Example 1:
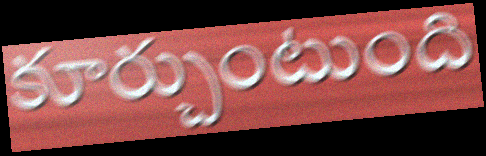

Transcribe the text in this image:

కూర్చుంటుంది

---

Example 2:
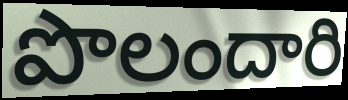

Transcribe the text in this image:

పొలందారి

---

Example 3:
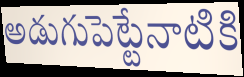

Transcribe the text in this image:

అడుగుపెట్టేనాటికి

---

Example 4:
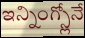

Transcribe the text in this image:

ఇన్నింగ్స్లోనే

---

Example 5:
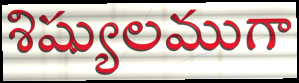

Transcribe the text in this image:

శిష్యులముగా